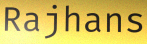
Rajhans